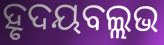
ହୃଦୟବଲ୍ଲଭ